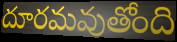
దూరమవుతోంది